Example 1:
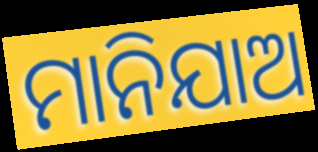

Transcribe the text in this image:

ମାନିଯାଅ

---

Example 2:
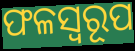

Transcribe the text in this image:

ଫଳସ୍ୱରୂପ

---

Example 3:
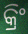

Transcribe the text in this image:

କ୍ରିଂ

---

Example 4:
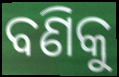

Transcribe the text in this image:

ବଣିକୁ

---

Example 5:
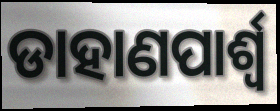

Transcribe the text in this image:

ଡାହାଣପାର୍ଶ୍ୱ